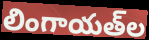
లింగాయత్‌ల